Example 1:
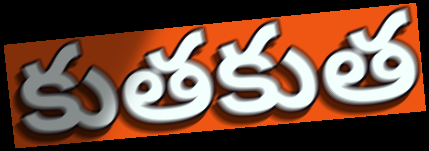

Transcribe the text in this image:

కుతకుత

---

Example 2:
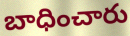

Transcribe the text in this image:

బాధించారు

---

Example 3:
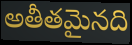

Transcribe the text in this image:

అతీతమైనది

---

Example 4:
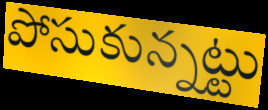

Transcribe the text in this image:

పోసుకున్నట్టు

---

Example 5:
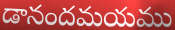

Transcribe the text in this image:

డానందమయము